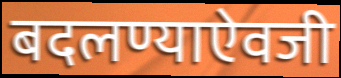
बदलण्याऐवजी